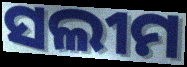
ସଲୀମ